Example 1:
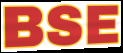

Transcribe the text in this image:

BSE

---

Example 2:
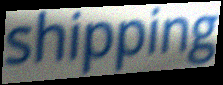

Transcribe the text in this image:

shipping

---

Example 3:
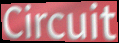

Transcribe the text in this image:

Circuit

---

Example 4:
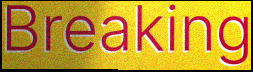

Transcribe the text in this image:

Breaking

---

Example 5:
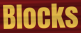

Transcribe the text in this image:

Blocks